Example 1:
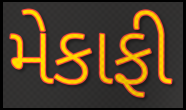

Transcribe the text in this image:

મેકાફી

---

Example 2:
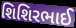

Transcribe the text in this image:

શિશિરભાઈ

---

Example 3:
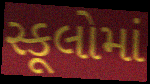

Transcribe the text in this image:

સ્કૂલોમાં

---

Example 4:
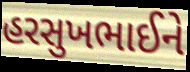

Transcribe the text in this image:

હરસુખભાઈને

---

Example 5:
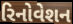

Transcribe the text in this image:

રિનોવેશન